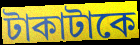
টাকাটাকে